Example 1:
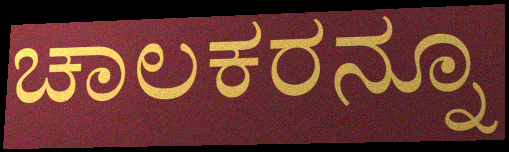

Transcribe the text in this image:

ಚಾಲಕರನ್ನೂ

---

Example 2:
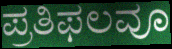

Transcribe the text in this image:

ಪ್ರತಿಫಲವೂ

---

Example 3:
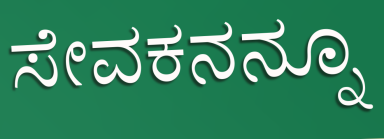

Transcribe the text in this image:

ಸೇವಕನನ್ನೂ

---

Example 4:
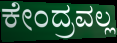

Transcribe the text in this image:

ಕೇಂದ್ರವಲ್ಲ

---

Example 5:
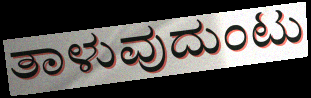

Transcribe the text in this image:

ತಾಳುವುದುಂಟು